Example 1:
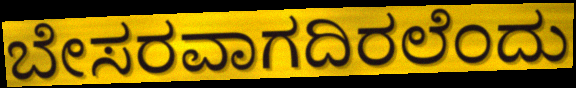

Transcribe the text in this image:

ಬೇಸರವಾಗದಿರಲೆಂದು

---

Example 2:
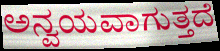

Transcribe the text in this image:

ಅನ್ವಯವಾಗುತ್ತದೆ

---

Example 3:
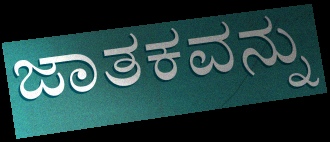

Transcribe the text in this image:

ಜಾತಕವನ್ನು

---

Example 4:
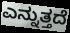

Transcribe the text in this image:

ಎನ್ನುತ್ತದೆ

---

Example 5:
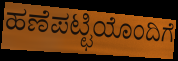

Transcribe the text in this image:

ಹಣೆಪಟ್ಟಿಯೊಂದಿಗೆ